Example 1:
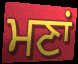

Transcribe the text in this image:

ਮਣਾਂ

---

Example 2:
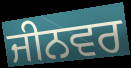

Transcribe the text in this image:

ਜੀਨਵਰ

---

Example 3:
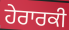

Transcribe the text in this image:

ਹੇਰਾਰਕੀ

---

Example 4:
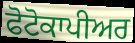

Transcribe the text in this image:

ਫੋਟੋਕਾਪੀਅਰ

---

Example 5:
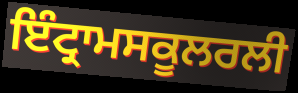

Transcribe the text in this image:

ਇੰਟ੍ਰਾਮਸਕੂਲਰਲੀ